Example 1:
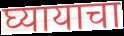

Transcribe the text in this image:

घ्यायाचा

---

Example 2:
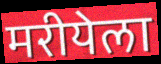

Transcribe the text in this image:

मरीयेला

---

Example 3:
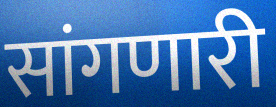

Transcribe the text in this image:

सांगणारी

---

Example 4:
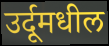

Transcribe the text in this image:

उर्दूमधील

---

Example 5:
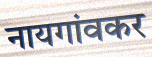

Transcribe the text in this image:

नायगांवकर